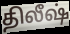
திலீஷ்